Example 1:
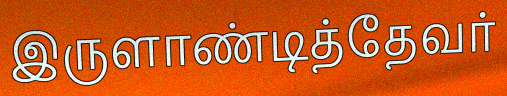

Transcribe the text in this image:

இருளாண்டித்தேவர்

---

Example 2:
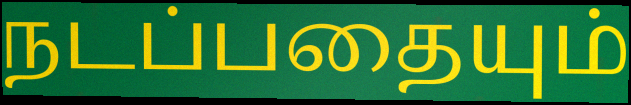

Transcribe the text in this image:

நடப்பதையும்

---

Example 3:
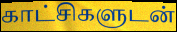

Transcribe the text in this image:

காட்சிகளுடன்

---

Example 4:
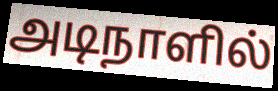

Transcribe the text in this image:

அடிநாளில்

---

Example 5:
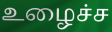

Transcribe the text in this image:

உழைச்ச